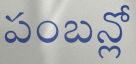
పంబన్లో